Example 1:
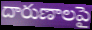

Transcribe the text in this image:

దారుణాలపై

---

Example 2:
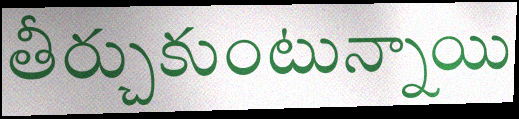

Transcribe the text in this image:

తీర్చుకుంటున్నాయి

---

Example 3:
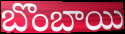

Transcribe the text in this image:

బొంబాయి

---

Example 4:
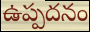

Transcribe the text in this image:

ఉప్పదనం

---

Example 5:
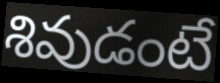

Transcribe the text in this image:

శివుడంటే